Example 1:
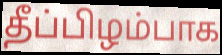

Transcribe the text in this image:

தீப்பிழம்பாக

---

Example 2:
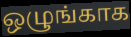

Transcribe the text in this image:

ஒழுங்காக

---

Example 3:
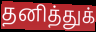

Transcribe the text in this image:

தனித்துக்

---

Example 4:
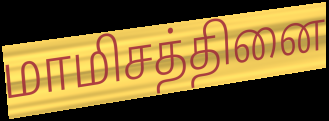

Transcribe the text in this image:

மாமிசத்தினை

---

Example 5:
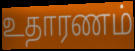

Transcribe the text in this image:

உதாரணம்